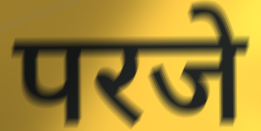
परजे